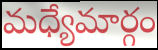
మధ్యేమార్గం